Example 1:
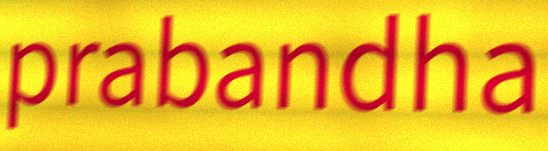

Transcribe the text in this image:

prabandha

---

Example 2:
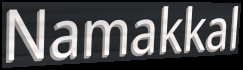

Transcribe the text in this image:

Namakkal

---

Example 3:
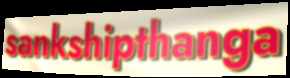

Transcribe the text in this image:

sankshipthanga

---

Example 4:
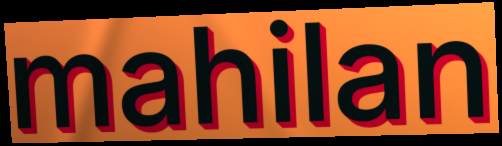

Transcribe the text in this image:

mahilan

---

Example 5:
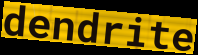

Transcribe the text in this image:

dendrite